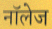
नॉलेज